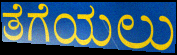
ತೆಗೆಯಲು